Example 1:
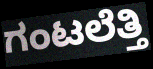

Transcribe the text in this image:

ಗಂಟಲೆತ್ತಿ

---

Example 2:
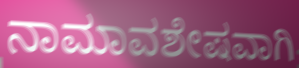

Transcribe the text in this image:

ನಾಮಾವಶೇಷವಾಗಿ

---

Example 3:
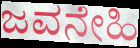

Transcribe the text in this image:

ಜವನೇಹಿ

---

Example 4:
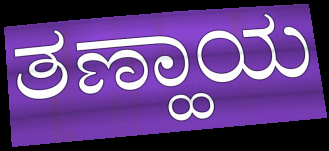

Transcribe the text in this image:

ತಣ್ಹಾಯ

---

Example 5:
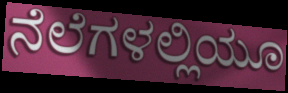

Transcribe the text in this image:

ನೆಲೆಗಳಲ್ಲಿಯೂ